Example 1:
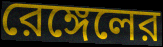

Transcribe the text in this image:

রেঙ্গেলের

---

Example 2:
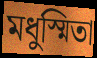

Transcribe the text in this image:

মধুস্মিতা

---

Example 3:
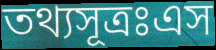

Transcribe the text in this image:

তথ্যসূত্রঃএস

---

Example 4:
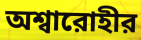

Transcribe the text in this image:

অশ্বারোহীর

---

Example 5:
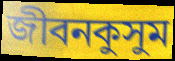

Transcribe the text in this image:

জীবনকুসুম